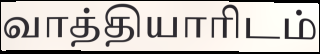
வாத்தியாரிடம்